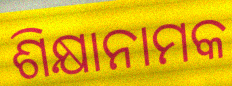
ଶିକ୍ଷାନାମକ